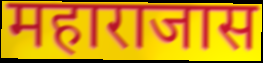
महाराजास